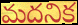
మదనిక